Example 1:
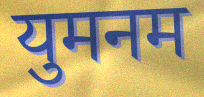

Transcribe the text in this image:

युमनम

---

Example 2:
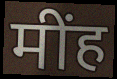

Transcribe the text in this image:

मींह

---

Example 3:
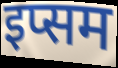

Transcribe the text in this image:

इप्सम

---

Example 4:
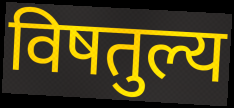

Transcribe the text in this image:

विषतुल्य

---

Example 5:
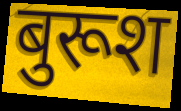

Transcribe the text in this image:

बुरूश